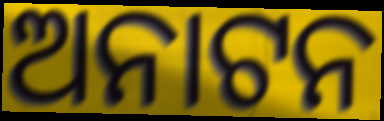
ଅନାଟନ